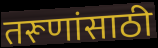
तरूणांसाठी